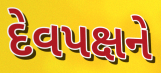
દેવપક્ષને